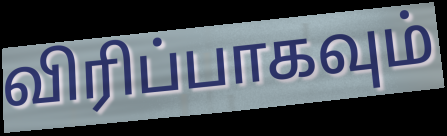
விரிப்பாகவும்